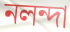
নলন্দা